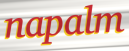
napalm